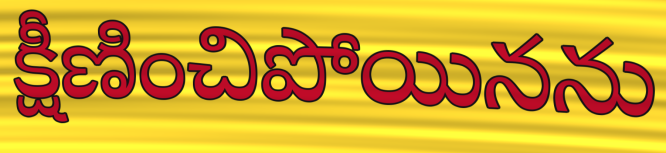
క్షీణించిపోయినను